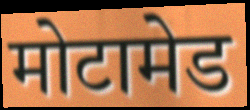
मोटामेड